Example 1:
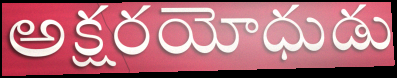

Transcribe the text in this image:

అక్షరయోధుడు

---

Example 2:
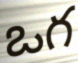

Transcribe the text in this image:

ఒగ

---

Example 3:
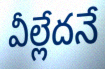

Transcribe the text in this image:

వీల్లేదనే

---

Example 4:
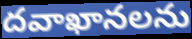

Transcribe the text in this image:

దవాఖానలను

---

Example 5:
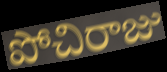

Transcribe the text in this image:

పోచిరాజు